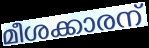
മീശക്കാരന്